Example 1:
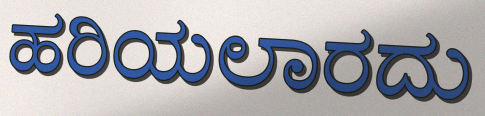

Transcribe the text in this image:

ಹರಿಯಲಾರದು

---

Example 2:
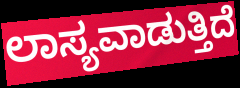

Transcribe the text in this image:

ಲಾಸ್ಯವಾಡುತ್ತಿದೆ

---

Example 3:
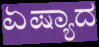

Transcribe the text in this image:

ಏಷ್ಯಾದ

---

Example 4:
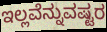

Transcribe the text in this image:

ಇಲ್ಲವೆನ್ನುವಷ್ಟರ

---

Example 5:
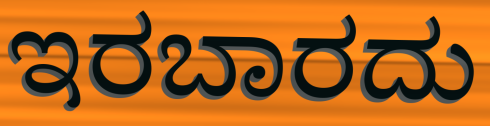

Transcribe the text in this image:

ಇರಬಾರದು